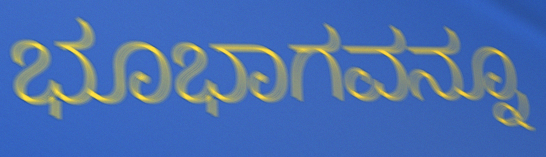
ಭೂಭಾಗವನ್ನೂ